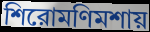
শিরোমণিমশায়